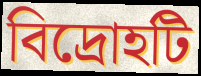
বিদ্রোহটি